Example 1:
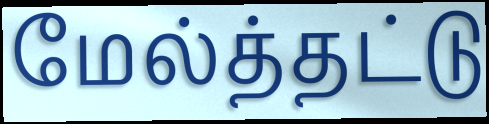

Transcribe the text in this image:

மேல்த்தட்டு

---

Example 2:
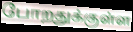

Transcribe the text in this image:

போறதுக்குள்ள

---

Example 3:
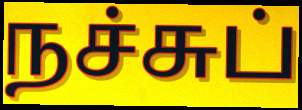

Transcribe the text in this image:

நச்சுப்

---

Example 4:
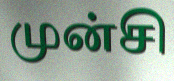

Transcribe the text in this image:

முன்சி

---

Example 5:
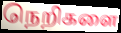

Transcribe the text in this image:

நெறிகளை